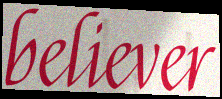
believer